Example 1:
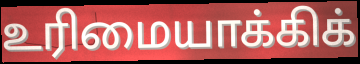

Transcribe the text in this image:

உரிமையாக்கிக்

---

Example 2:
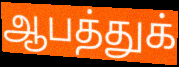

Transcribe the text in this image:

ஆபத்துக்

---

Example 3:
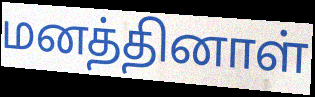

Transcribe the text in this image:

மனத்தினாள்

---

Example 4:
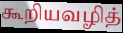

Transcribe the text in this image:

கூறியவழித்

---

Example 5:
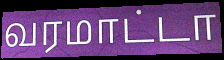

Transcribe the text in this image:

வரமாட்டா